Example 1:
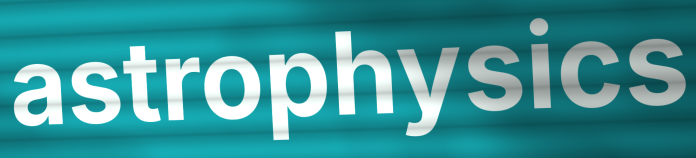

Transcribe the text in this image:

astrophysics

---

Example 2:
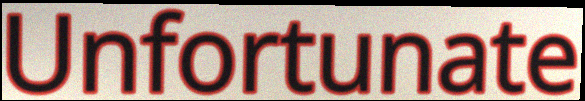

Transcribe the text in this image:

Unfortunate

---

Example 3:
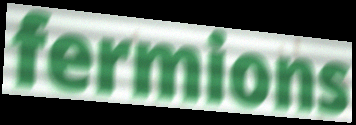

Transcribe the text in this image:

fermions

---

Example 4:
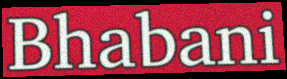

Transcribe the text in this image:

Bhabani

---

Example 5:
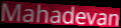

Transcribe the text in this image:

Mahadevan